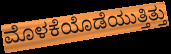
ಮೊಳಕೆಯೊಡೆಯುತ್ತಿತ್ತು